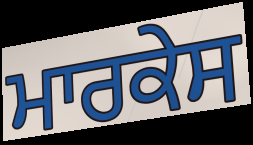
ਮਾਰਕੇਸ